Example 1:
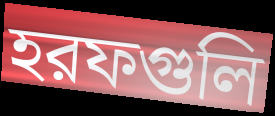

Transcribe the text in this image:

হরফগুলি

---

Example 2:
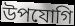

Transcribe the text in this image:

উপযোগি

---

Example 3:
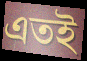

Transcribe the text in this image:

এতই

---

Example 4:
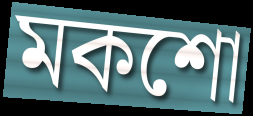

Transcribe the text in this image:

মকশো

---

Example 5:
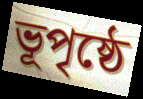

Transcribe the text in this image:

ভূপৃষ্ঠে